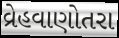
વ્રેહવાણોતરા